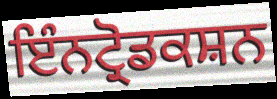
ਇੰਨਟ੍ਰੋਡਕਸ਼ਨ